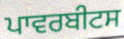
ਪਾਵਰਬੀਟਸ